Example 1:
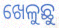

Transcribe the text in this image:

ଖେଳୁଛୁ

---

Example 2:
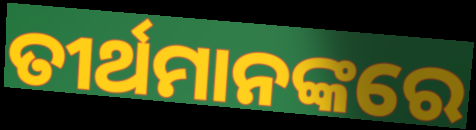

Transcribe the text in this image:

ତୀର୍ଥମାନଙ୍କରେ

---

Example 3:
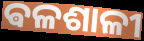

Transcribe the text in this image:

ଵଳଶାଳୀ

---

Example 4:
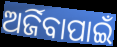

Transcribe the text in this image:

ଅର୍ଜିବାପାଇଁ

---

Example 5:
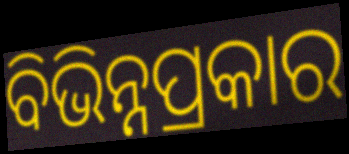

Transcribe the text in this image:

ବିଭିନ୍ନପ୍ରକାର